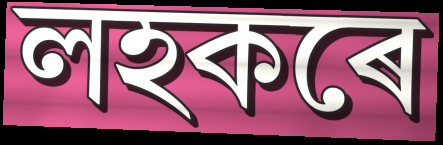
লহকৰে